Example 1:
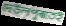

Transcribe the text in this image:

দেউলপুৰতেই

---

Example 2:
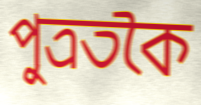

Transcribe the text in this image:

পুত্ৰতকৈ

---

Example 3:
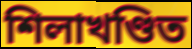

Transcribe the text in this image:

শিলাখণ্ডিত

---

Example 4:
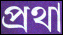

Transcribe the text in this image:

প্ৰথা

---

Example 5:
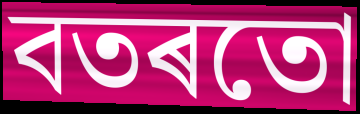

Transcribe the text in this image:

বতৰতো